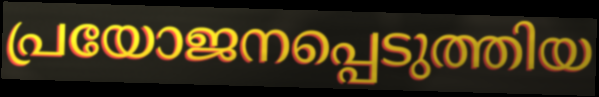
പ്രയോജനപ്പെടുത്തിയ